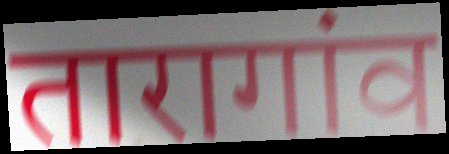
तारागांव